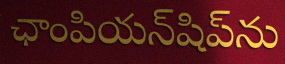
ఛాంపియన్‌షిప్‌ను